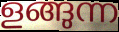
ളങ്ങുന്ന